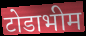
टोडाभीम